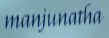
manjunatha